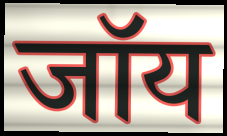
जॉय